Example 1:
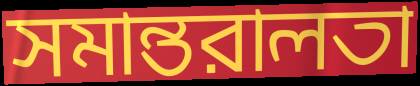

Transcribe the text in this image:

সমান্তরালতা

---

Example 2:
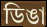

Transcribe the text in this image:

ডিঙা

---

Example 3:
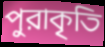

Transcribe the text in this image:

পুরাকৃতি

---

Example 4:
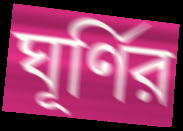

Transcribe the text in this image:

ঘূর্ণির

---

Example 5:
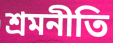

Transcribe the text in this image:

শ্রমনীতি